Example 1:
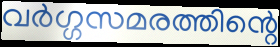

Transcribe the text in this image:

വർഗ്ഗസമരത്തിന്റെ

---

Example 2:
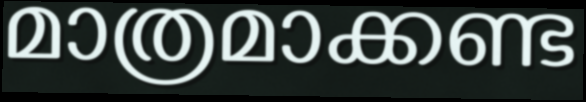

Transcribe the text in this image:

മാത്രമാക്കണ്ട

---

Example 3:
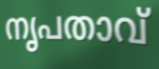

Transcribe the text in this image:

നൃപതാവ്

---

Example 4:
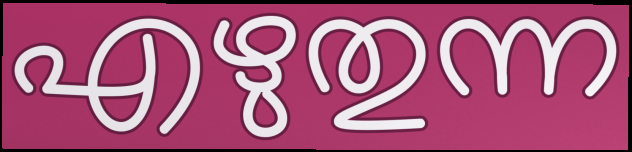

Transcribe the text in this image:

എഴുതുന്ന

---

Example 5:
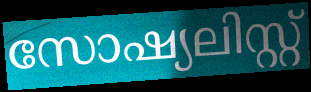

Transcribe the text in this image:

സോഷ്യലിസ്റ്റ്